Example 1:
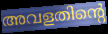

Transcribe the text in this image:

അവളതിന്റെ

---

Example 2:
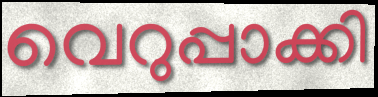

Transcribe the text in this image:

വെറുപ്പാക്കി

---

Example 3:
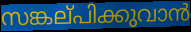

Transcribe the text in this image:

സങ്കല്‌പിക്കുവാൻ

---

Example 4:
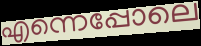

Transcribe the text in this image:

എന്നെപ്പോലെ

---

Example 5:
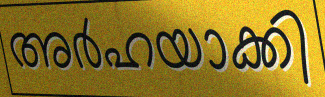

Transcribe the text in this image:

അർഹയാക്കി